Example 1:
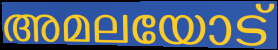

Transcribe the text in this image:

അമലയോട്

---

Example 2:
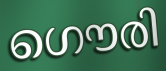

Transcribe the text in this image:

ഗൌരി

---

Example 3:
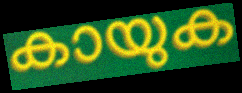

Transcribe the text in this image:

കായുക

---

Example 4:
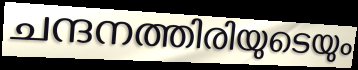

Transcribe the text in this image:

ചന്ദനത്തിരിയുടെയും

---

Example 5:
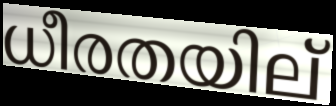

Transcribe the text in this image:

ധീരതയില്